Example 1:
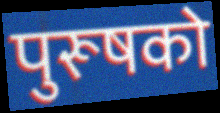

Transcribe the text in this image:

पुरूषको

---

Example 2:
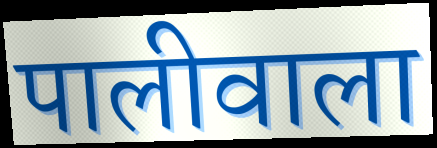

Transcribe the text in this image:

पालीवाला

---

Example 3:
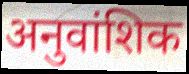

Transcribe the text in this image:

अनुवांशिक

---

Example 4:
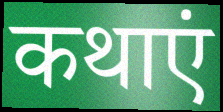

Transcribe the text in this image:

कथाएं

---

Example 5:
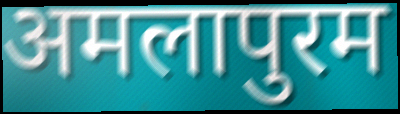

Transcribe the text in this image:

अमलापुरम